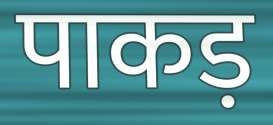
पाकड़